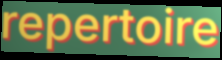
repertoire